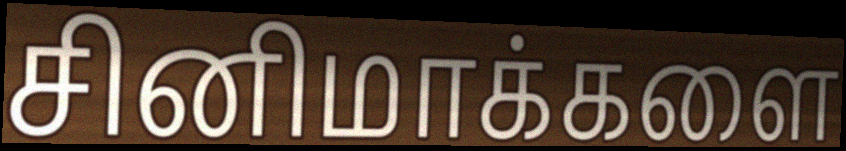
சினிமாக்களை